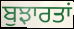
ਬੁਝਾਰਤਾਂ